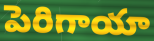
పెరిగాయా